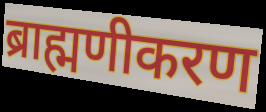
ब्राह्मणीकरण